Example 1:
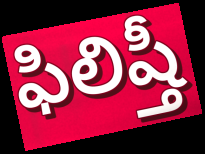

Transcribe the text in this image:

ఫిలిష్తీ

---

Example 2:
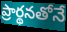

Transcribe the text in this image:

ప్రార్థనతోనే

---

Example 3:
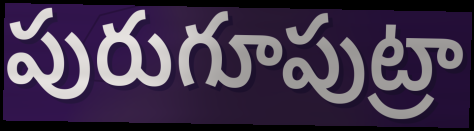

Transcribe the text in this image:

పురుగూపుట్రా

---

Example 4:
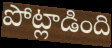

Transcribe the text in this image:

పోట్లాడింది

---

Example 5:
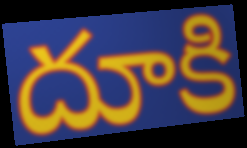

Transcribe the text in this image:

దూకి